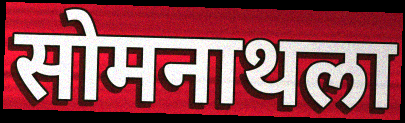
सोमनाथला